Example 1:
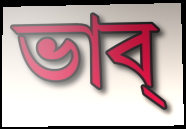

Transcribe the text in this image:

ভাব্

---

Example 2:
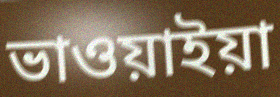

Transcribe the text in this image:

ভাওয়াইয়া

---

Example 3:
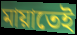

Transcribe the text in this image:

মায়াতেই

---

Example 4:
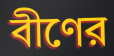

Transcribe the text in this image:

বীণের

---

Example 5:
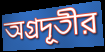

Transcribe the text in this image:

অগ্রদূতীর